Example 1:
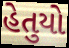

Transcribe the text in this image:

હેતુયો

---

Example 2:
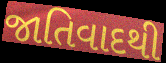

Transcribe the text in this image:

જાતિવાદથી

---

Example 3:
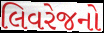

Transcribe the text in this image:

લિવરેજનો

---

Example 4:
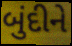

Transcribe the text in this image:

બુંદીને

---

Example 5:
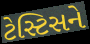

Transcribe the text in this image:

ટેસ્ટિસને